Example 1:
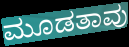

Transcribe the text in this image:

ಮೂಡತಾವು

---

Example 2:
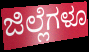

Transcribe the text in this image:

ಜಿಲ್ಲೆಗಳೂ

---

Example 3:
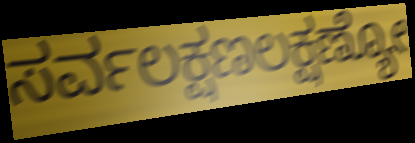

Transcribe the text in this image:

ಸರ್ವಲಕ್ಷಣಲಕ್ಷಣ್ಯೋ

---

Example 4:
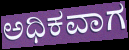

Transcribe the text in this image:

ಅಧಿಕವಾಗ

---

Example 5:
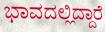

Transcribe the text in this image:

ಭಾವದಲ್ಲಿದ್ದಾರೆ